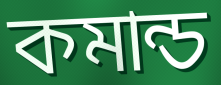
কমান্ড